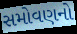
સમોવણનો